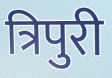
त्रिपुरी